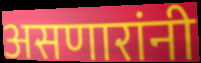
असणारांनी